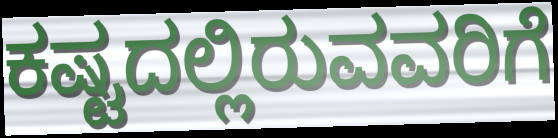
ಕಷ್ಟದಲ್ಲಿರುವವರಿಗೆ